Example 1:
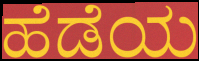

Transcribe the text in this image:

ಹೆಡೆಯ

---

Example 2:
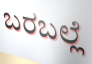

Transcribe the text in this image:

ಬರಬಲ್ಲೆ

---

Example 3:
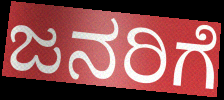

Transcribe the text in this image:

ಜನರಿಗೆ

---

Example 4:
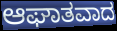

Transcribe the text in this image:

ಆಘಾತವಾದ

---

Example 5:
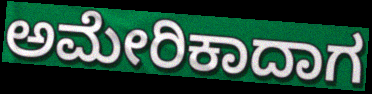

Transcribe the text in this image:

ಅಮೇರಿಕಾದಾಗ